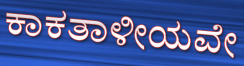
ಕಾಕತಾಳೀಯವೇ